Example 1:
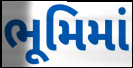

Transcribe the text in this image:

ભૂમિમાં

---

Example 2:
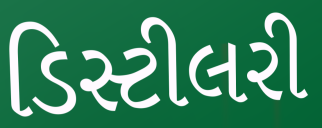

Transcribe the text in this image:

ડિસ્ટીલરી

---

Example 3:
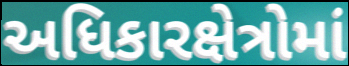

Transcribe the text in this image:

અધિકારક્ષેત્રોમાં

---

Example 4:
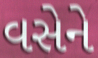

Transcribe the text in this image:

વસેને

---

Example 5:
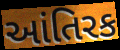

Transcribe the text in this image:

આંતિરક